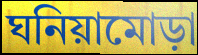
ঘনিয়ামোড়া